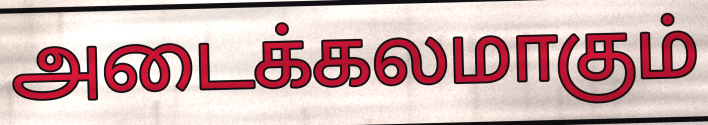
அடைக்கலமாகும்